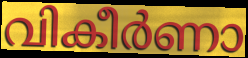
വികീർണാ